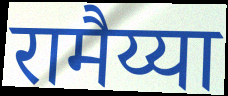
रामैय्या